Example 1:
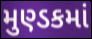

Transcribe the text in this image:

મુણ્ડકમાં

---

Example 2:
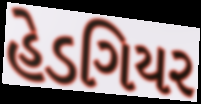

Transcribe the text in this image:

હેડગિયર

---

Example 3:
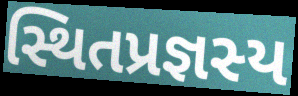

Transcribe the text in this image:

સ્થિતપ્રજ્ઞસ્ય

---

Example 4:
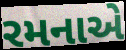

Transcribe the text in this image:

રમનાએ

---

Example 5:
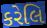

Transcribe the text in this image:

કરેલિ